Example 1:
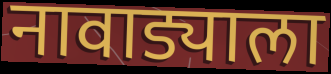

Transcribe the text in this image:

नावाड्याला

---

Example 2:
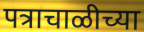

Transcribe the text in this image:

पत्राचाळीच्या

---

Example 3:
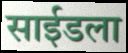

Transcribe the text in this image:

साईडला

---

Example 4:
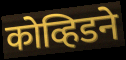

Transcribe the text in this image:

कोव्हिडने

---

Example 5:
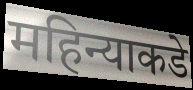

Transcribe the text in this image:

महिन्याकडे